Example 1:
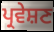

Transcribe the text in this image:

ਪ੍ਰਵੇਸ਼ਣ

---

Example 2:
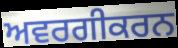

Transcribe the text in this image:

ਅਵਰਗੀਕਰਨ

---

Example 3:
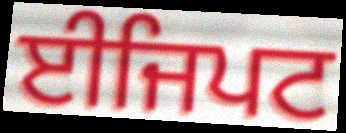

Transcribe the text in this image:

ਈਜਿਪਟ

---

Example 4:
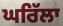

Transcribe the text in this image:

ਘਰਿੱਲਾ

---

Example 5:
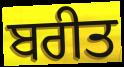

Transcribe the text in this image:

ਬਰੀਤ